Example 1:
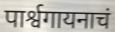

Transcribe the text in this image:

पार्श्वगायनाचं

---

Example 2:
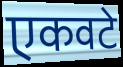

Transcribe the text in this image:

एकवटे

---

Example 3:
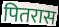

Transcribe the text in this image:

पितरास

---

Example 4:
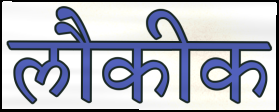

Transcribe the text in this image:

लौकीक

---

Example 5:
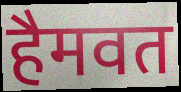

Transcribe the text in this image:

हैमवत